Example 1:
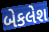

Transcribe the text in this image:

બેકલેશ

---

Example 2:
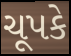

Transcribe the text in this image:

ચૂપકે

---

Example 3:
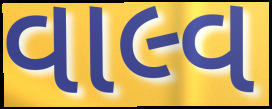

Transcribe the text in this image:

વાલ્વ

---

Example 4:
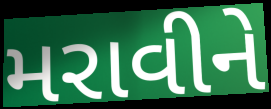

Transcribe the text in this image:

મરાવીને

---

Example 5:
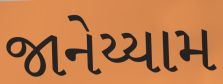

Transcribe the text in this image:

જાનેય્યામ